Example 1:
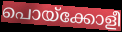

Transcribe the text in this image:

പൊയ്ക്കോളീ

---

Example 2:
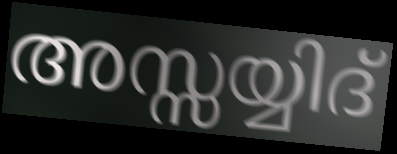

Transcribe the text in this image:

അസ്സയ്യിദ്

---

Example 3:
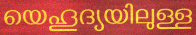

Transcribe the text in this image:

യെഹൂദ്യയിലുള്ള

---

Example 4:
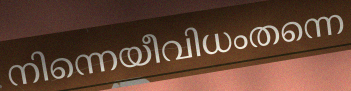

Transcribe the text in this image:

നിന്നെയീവിധംതന്നെ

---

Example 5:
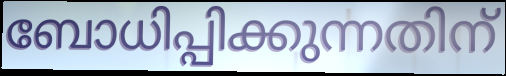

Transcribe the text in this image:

ബോധിപ്പിക്കുന്നതിന്